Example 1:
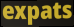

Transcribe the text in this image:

expats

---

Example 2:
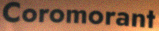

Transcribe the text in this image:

Coromorant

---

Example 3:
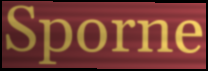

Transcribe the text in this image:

Sporne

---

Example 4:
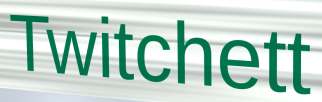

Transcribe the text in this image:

Twitchett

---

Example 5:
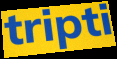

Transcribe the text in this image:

tripti